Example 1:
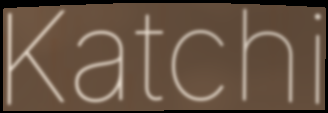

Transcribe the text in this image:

Katchi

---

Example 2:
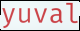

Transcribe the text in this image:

yuval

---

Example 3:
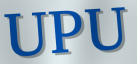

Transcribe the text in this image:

UPU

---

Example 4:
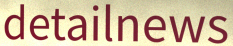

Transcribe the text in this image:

detailnews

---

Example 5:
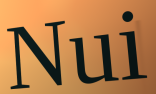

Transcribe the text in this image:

Nui